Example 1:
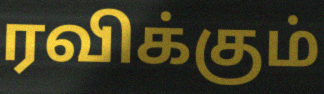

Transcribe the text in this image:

ரவிக்கும்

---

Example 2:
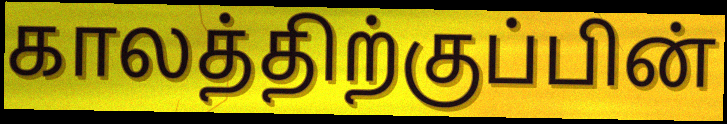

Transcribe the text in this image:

காலத்திற்குப்பின்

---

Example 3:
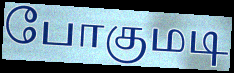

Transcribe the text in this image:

போகுமடி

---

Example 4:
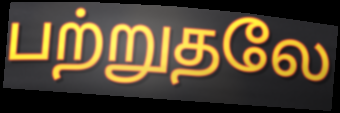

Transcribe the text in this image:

பற்றுதலே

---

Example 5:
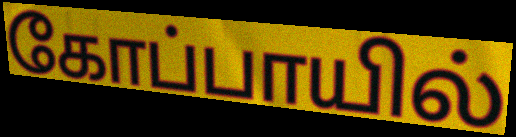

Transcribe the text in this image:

கோப்பாயில்